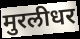
मुरलीधर